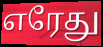
எரேது